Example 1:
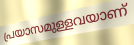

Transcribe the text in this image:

പ്രയാസമുള്ളവയാണ്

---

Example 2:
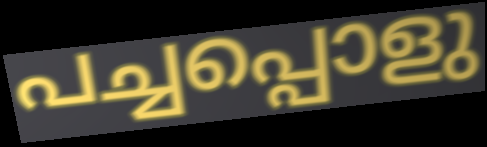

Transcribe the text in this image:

പച്ചപ്പൊളു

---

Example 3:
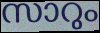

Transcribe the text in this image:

സാറും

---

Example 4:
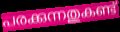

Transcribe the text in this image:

പരക്കുന്നതുകണ്ട്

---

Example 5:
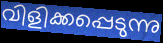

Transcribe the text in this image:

വിളിക്കപ്പെടുന്നു